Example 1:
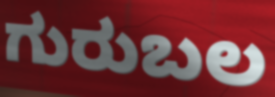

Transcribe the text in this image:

ಗುರುಬಲ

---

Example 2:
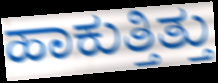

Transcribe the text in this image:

ಹಾಕುತ್ತಿತ್ತು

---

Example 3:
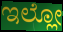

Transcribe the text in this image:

ಇಲ್ಲೋ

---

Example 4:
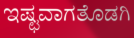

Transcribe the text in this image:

ಇಷ್ಟವಾಗತೊಡಗಿ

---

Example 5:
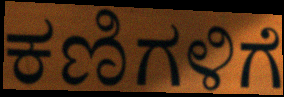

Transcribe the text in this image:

ಕಣಿಗಳಿಗೆ